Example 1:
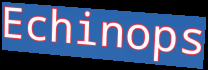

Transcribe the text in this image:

Echinops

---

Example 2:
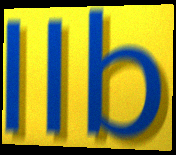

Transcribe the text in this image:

IIb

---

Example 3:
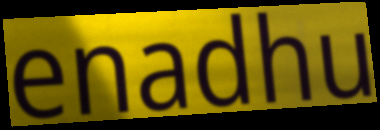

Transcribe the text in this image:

enadhu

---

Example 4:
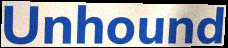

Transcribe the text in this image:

Unhound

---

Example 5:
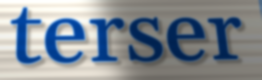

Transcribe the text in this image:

terser